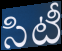
సిటీ